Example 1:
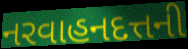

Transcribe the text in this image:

નરવાહનદત્તની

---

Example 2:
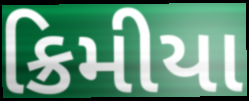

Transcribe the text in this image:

ક્રિમીયા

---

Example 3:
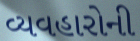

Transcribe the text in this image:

વ્યવહારોની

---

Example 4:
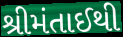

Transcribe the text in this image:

શ્રીમંતાઈથી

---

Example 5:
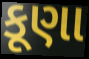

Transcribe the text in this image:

કૂણા